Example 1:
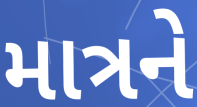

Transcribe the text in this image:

માત્રને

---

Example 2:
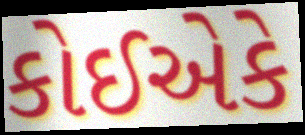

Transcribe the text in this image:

કોઈએકે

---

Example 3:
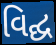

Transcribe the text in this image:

વિદ્ઘ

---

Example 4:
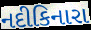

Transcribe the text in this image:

નદીકિનારા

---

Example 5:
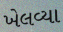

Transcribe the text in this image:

ખેલવ્યા